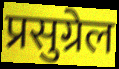
प्रसुग्रेल